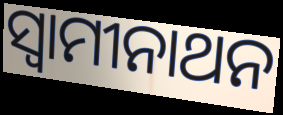
ସ୍ୱାମୀନାଥନ